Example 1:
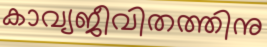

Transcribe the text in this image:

കാവ്യജീവിതത്തിനു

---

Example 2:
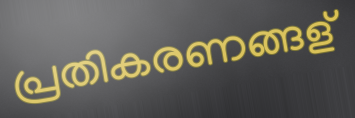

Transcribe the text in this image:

പ്രതികരണങ്ങള്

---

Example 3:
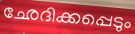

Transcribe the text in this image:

ഛേദിക്കപ്പെടും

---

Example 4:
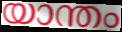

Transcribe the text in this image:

യാന്തം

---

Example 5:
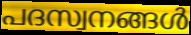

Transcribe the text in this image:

പദസ്വനങ്ങൾ